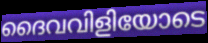
ദൈവവിളിയോടെ